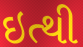
ઇત્થી